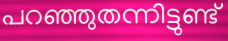
പറഞ്ഞുതന്നിട്ടുണ്ട്